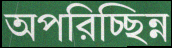
অপরিচ্ছিন্ন